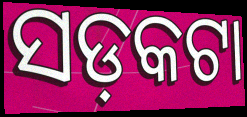
ସଡ଼କଟା